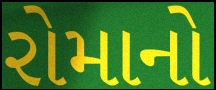
રોમાનો